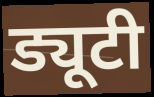
ड्यूटी